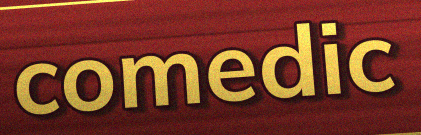
comedic